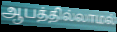
ஆபத்தில்லாமல்